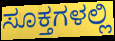
ಸೂಕ್ತಗಳಲ್ಲಿ